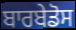
ਬਾਰਬੇਡੋਸ